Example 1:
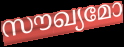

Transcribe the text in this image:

സൗഖ്യമോ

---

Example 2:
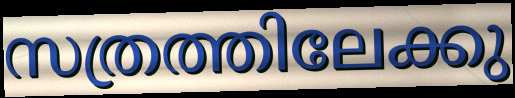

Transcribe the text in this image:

സത്രത്തിലേക്കു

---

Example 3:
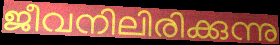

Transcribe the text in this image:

ജീവനിലിരിക്കുന്നു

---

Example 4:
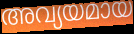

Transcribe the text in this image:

അവ്യയമായ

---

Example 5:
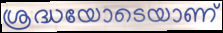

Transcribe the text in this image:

ശ്രദ്ധയോടെയാണ്